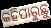
କହିପାରୁଛୁ